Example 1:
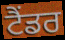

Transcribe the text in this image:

ਟੈਂਡਰ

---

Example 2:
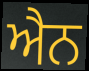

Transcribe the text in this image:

ਐਨ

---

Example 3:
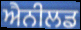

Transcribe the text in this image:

ਐਨੀਲਡ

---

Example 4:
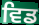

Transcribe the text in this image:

ਵਿਡ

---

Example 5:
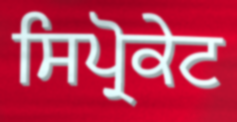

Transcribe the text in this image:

ਸਿਪ੍ਰੋਕੇਟ